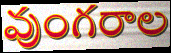
వుంగరాల